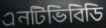
এনটিভিবিডি